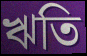
ঋতি